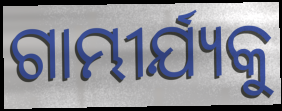
ଗାମ୍ଭୀର୍ଯ୍ୟକୁ